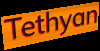
Tethyan